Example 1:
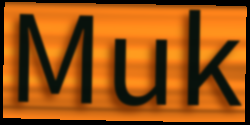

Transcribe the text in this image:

Muk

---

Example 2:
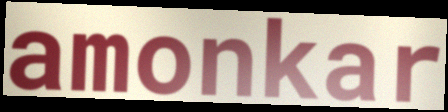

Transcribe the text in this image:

amonkar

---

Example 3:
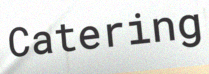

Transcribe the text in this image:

Catering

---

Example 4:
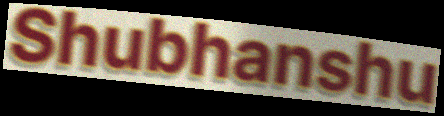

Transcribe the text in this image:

Shubhanshu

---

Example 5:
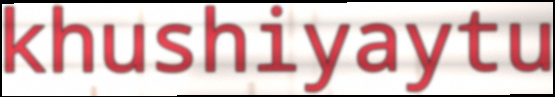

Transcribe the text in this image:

khushiyaytu